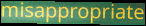
misappropriate